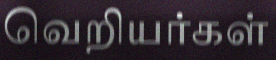
வெறியர்கள்